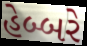
હેબ્બરે